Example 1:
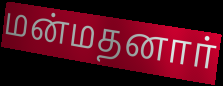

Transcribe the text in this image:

மன்மதனார்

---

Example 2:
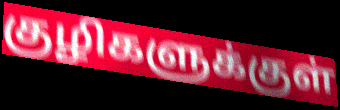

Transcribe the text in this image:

குழிகளுக்குள்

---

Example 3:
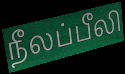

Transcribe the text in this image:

நீலப்பீலி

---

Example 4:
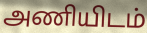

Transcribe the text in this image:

அணியிடம்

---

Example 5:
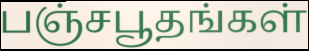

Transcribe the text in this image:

பஞ்சபூதங்கள்